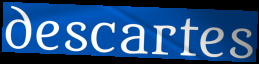
descartes